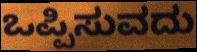
ಒಪ್ಪಿಸುವದು